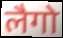
लैगो